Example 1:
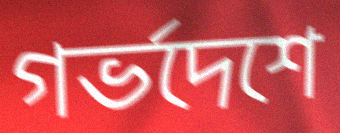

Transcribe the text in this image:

গর্ভদেশে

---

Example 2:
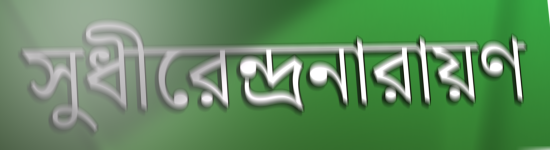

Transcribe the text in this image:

সুধীরেন্দ্রনারায়ণ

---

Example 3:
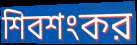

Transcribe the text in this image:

শিবশংকর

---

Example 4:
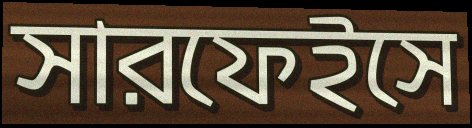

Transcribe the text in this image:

সারফেইসে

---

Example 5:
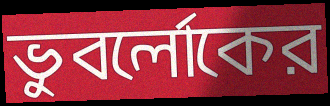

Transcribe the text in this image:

ভুবর্লোকের